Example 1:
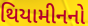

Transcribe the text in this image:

થિયામીનનો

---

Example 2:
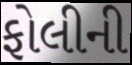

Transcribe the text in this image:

ફોલીની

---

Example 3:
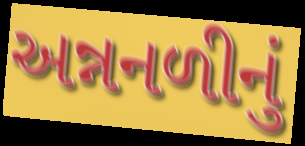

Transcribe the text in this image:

અન્નનળીનું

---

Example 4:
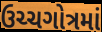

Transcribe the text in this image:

ઉચ્ચગોત્રમાં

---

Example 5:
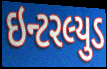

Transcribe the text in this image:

ઇન્ટરલ્યુડ